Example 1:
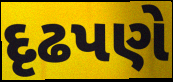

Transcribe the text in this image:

દૃઢપણે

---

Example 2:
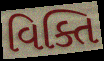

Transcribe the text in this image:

વિક્તિ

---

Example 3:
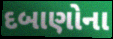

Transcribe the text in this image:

દબાણોના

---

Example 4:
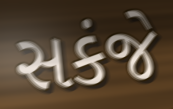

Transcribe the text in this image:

સકંજે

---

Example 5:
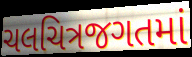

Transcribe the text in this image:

ચલચિત્રજગતમાં